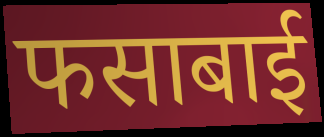
फसाबाई